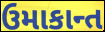
ઉમાકાન્ત